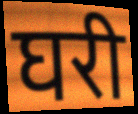
घरी